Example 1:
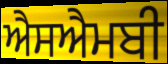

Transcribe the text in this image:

ਐਸਐਮਬੀ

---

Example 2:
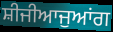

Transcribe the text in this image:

ਸ਼ੀਜੀਆਜੁਆਂਗ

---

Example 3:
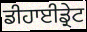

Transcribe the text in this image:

ਡੀਹਾਈਡ੍ਰੇਟ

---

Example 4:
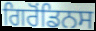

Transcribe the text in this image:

ਗਿਰੋਂਡਿਨਸ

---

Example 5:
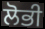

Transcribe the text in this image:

ਲੋਭੀ